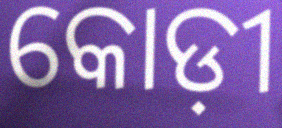
କୋଡ଼ୀ